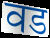
वड